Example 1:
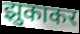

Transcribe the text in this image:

झुकाकर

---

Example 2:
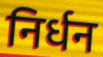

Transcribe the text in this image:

निर्धन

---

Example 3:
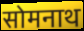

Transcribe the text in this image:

सोमनाथ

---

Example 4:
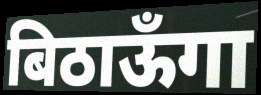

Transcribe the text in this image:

बिठाऊँगा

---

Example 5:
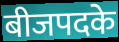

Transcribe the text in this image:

बीजपदके